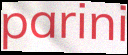
parini